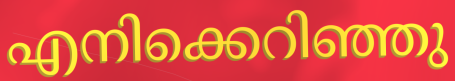
എനിക്കെറിഞ്ഞു